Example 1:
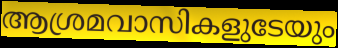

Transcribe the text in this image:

ആശ്രമവാസികളുടേയും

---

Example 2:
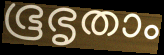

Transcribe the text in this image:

ഭൂഭൃതാം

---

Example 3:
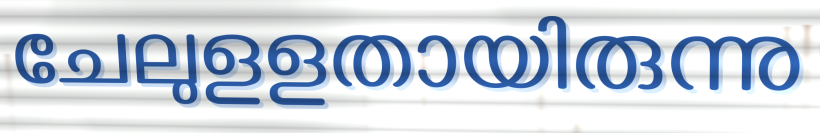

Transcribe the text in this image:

ചേലുളളതായിരുന്നു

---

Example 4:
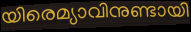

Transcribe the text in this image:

യിരെമ്യാവിനുണ്ടായി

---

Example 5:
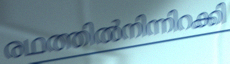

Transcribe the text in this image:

രഥത്തിൽനിന്നിറക്കി